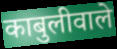
काबुलीवाले